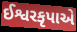
ઈશ્વરકૃપાએ